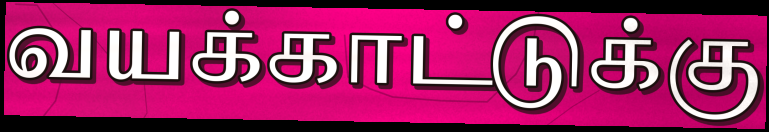
வயக்காட்டுக்கு